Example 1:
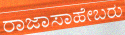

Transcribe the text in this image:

ರಾಜಾಸಾಹೇಬರು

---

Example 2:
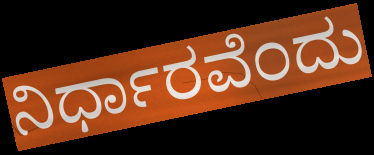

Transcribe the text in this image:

ನಿರ್ಧಾರವೆಂದು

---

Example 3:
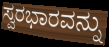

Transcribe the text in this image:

ಸ್ವರಭಾರವನ್ನು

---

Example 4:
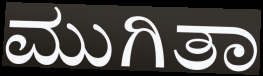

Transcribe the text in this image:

ಮುಗಿತಾ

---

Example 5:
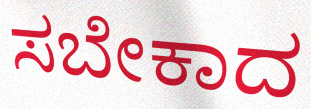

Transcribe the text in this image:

ಸಬೇಕಾದ